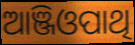
ଆଞ୍ଜିଓପାଥି